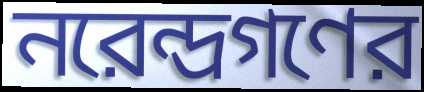
নরেন্দ্রগণের